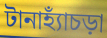
টানাহ্যাঁচড়া